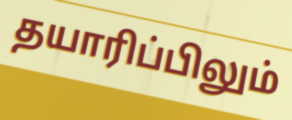
தயாரிப்பிலும்